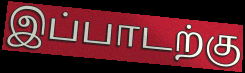
இப்பாடற்கு